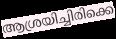
ആശ്രയിച്ചിരിക്കെ